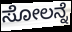
ಸೋಲನ್ನೆ